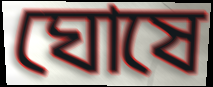
ঘোষে